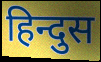
हिन्दुस